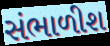
સંભાળીશ